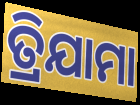
ତ୍ରିଯାମା